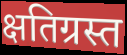
क्षतिग्रस्त